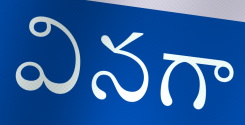
వినగా